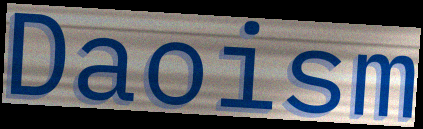
Daoism